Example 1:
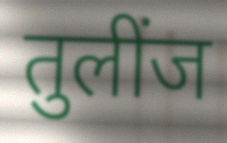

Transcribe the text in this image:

तुलींज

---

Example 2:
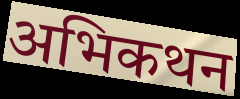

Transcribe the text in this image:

अभिकथन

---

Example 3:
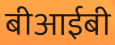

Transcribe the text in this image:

बीआईबी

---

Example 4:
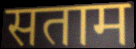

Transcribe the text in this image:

सताम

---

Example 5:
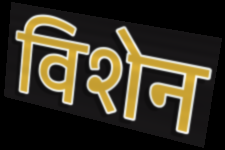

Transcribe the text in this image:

विशेन